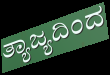
ತ್ಯಾಜ್ಯದಿಂದ